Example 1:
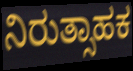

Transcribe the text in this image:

ನಿರುತ್ಸಾಹಕ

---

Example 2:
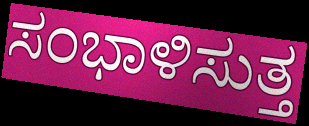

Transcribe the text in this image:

ಸಂಭಾಳಿಸುತ್ತ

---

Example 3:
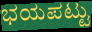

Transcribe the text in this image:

ಭಯಪಟ್ಟು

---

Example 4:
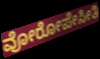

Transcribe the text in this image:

ವೋರೋಪೇಸೀತಿ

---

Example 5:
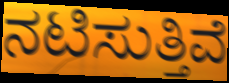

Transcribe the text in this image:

ನಟಿಸುತ್ತಿವೆ